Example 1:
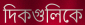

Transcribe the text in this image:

দিকগুলিকে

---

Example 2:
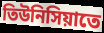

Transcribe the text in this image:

তিউনিসিয়াতে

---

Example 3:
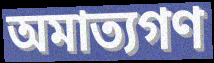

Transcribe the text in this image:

অমাত্যগণ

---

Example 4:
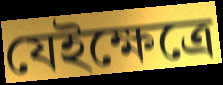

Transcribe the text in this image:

যেইক্ষেত্রে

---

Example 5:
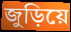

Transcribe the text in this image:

জুড়িয়ে